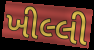
ખીલ્લી